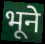
भूने